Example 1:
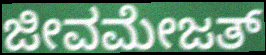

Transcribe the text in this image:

ಜೀವಮೇಜತ್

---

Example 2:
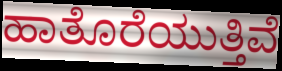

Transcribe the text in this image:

ಹಾತೊರೆಯುತ್ತಿವೆ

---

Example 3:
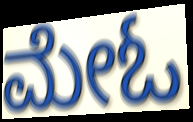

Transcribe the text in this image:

ಮೇಓ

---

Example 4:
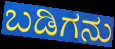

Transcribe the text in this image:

ಬಡಿಗನು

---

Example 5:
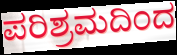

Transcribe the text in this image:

ಪರಿಶ್ರಮದಿಂದ